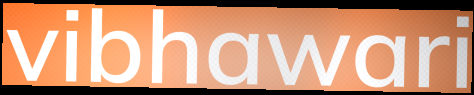
vibhawari